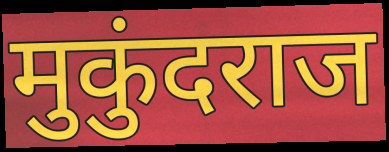
मुकुंदराज